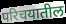
परिचयातील